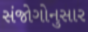
સંજોગોનુસાર